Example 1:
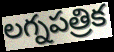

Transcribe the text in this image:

లగ్నపత్రిక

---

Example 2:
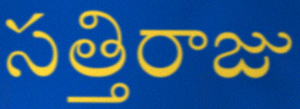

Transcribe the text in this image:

సత్తిరాజు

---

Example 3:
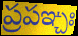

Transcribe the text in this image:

ప్రపఞ్చః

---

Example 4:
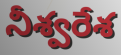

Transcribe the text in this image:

నీశ్వరేశ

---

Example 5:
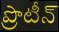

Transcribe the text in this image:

ప్రొటీన్